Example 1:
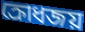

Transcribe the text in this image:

ক্রোধজয়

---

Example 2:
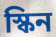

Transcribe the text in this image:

স্কিন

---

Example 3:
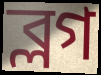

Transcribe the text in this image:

ব্লগ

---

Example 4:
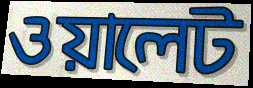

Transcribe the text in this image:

ওয়ালেট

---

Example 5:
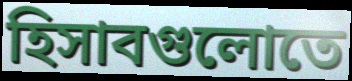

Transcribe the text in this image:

হিসাবগুলোতে